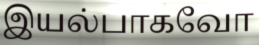
இயல்பாகவோ